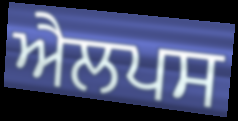
ਐਲਪਸ